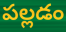
పల్లడం